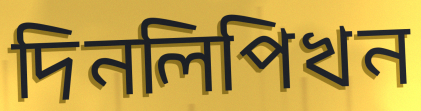
দিনলিপিখন